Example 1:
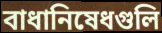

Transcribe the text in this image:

বাধানিষেধগুলি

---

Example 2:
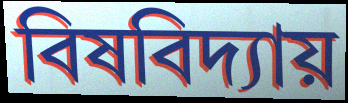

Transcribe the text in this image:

বিষবিদ্যায়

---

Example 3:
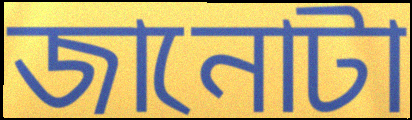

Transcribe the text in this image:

জানোটা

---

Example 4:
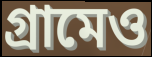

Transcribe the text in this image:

গ্রামেও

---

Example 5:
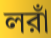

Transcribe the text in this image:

লরাঁ